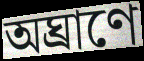
অঘ্রাণে